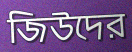
জিউদের